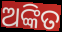
ଅଙ୍କିତ